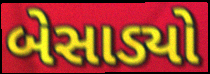
બેસાડ્યો